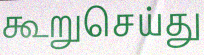
கூறுசெய்து